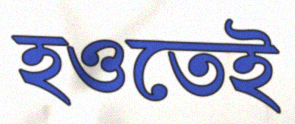
হওতেই